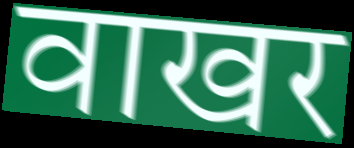
वाखर